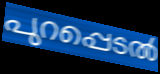
പുറപ്പെടൽ